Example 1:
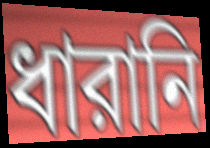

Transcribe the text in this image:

ধারানি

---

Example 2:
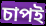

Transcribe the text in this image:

চাপই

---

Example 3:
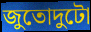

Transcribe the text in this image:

জুতোদুটো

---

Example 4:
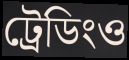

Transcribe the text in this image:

ট্রেডিংও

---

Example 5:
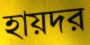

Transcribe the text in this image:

হায়দর